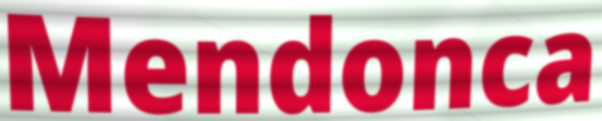
Mendonca